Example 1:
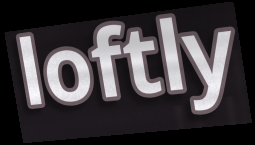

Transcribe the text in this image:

loftly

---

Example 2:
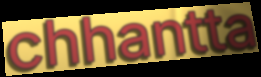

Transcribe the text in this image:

chhantta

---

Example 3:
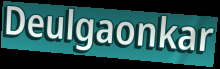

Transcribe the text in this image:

Deulgaonkar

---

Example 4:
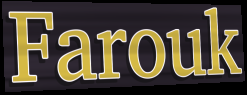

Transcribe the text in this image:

Farouk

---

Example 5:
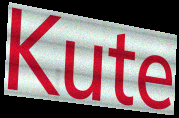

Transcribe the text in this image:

Kute